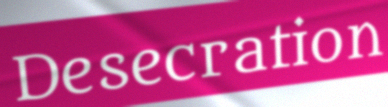
Desecration